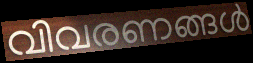
വിവരണങ്ങൾ